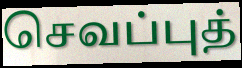
செவப்புத்